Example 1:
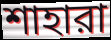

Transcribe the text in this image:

শাহারা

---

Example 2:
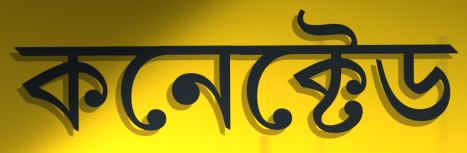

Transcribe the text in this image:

কনেক্টেড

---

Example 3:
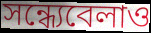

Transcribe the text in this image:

সন্ধ্যেবেলাও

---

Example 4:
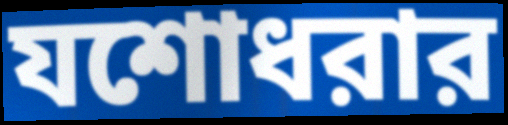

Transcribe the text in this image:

যশোধরার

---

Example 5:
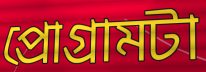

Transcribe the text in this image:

প্রোগ্রামটা